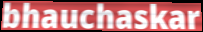
bhauchaskar